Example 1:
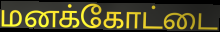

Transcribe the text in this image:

மனக்கோட்டை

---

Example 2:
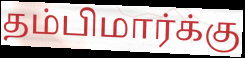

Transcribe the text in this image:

தம்பிமார்க்கு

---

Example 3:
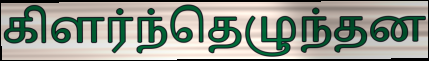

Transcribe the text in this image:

கிளர்ந்தெழுந்தன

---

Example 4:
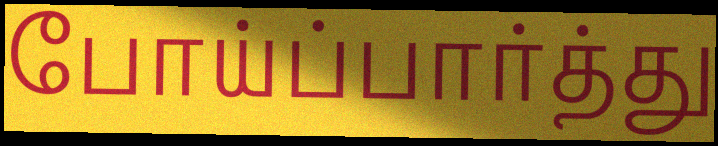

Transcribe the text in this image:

போய்ப்பார்த்து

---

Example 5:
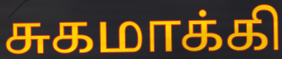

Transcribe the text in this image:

சுகமாக்கி